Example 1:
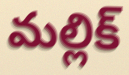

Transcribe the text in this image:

మల్లిక్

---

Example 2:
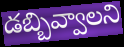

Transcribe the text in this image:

డబ్బివ్వాలని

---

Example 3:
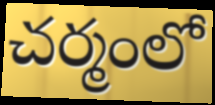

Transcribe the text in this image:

చర్మంలో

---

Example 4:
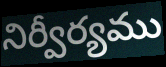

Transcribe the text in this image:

నిర్వీర్యము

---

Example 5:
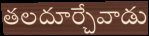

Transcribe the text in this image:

తలదూర్చేవాడు